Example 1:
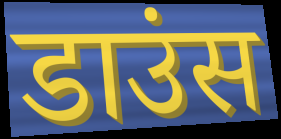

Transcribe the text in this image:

डाउंस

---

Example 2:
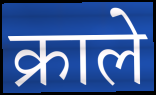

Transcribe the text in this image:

क्राले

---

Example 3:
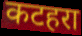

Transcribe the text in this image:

कटहरा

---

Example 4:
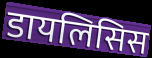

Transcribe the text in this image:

डायलिसिस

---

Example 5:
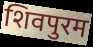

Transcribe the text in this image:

शिवपुरम